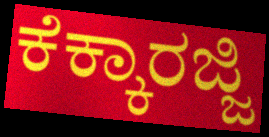
ಕೆಕ್ಕಾರಜ್ಜಿ